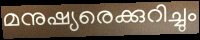
മനുഷ്യരെക്കുറിച്ചും